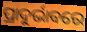
ପ୍ରାଦୁର୍ଭାବରେ